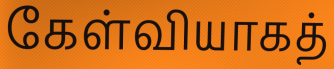
கேள்வியாகத்